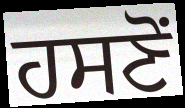
ਹਸਣੋਂ